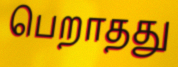
பெறாதது